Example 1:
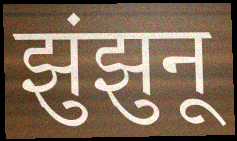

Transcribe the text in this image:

झुंझुनू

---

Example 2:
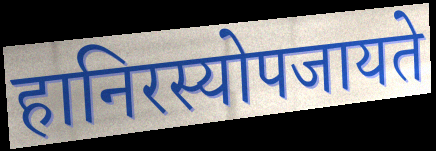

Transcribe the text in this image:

हानिरस्योपजायते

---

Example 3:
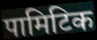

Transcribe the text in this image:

पामिटिक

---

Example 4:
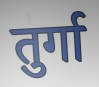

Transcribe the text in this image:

तुर्गा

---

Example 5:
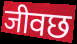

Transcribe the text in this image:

जीवछ